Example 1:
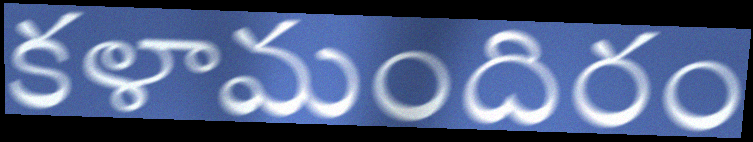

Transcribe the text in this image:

కళామందిరం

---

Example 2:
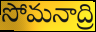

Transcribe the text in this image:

సోమనాద్రి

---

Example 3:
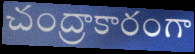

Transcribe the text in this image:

చంద్రాకారంగా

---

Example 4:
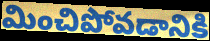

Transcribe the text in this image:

మించిపోవడానికి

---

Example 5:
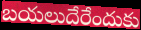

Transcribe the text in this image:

బయలుదేరేందుకు